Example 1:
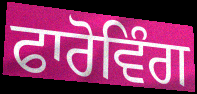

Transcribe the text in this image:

ਫਾਰੋਵਿੰਗ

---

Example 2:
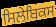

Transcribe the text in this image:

ਸਿਲੇਬਿਕਸ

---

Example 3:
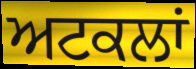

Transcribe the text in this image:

ਅਟਕਲਾਂ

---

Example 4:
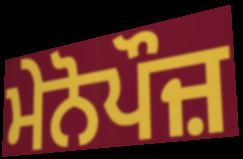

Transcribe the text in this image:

ਮੇਨੋਪੌਜ਼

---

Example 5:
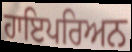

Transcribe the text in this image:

ਹਾਇਪਰਿਅਨ